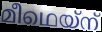
മീഥെയ്ന്